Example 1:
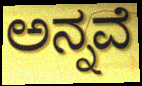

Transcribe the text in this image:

ಅನ್ನವೆ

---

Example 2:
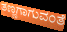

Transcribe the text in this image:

ತಣ್ಣಗಾಗುವಂತೆ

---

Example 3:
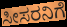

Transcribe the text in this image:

ಸೀಸರನಿಗೆ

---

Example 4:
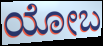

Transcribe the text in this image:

ಯೋಬ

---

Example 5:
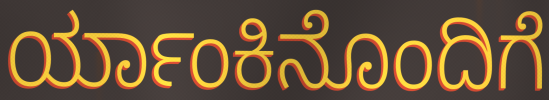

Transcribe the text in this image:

ರ್ಯಾಂಕಿನೊಂದಿಗೆ